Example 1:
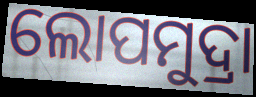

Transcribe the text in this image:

ଲୋପମୁଦ୍ରା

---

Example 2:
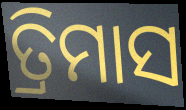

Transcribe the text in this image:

ତ୍ରିମାସ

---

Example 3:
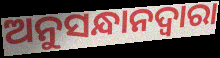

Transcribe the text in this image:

ଅନୁସନ୍ଧାନଦ୍ୱାରା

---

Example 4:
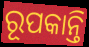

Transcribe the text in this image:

ରୂପକାନ୍ତି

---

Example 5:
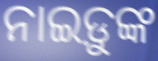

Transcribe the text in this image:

ନାଇଡ଼ୁଙ୍କ